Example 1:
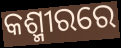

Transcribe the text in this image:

କଶ୍ମୀରରେ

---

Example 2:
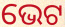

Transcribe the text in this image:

ଭେଟ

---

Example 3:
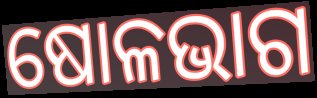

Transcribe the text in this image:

ଷୋଳଭାଗ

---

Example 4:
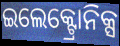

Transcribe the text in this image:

ଇଲେକ୍ଟ୍ରୋନିକ୍ସ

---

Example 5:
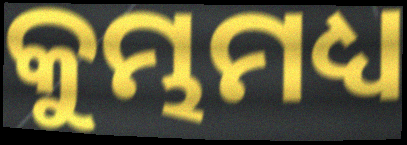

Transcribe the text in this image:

କୁମ୍ଭମଧ୍ୟ